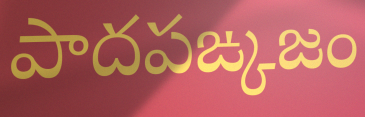
పాదపఙ్కజం